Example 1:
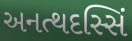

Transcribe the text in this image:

અનત્થદસ્સિં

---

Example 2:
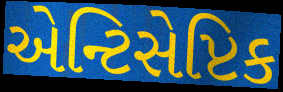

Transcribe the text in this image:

એન્ટિસેપ્ટિક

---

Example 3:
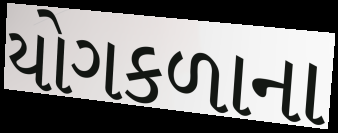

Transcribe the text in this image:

યોગકળાના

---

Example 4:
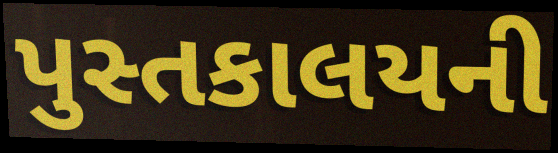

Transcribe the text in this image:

પુસ્તકાલયની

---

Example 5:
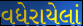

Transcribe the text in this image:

વધેરાયેલાં